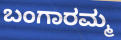
ಬಂಗಾರಮ್ಮ